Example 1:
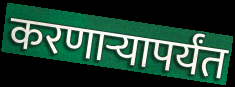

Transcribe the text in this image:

करणाऱ्यापर्यंत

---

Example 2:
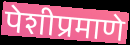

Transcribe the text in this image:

पेशीप्रमाणे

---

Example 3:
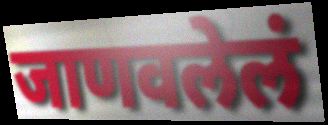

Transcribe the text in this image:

जाणवलेलं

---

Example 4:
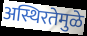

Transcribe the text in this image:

अस्थिरतेमुळे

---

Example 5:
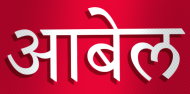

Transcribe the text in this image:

आबेल